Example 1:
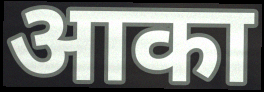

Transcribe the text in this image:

आका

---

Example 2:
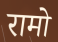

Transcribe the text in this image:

रामो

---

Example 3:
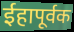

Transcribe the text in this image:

ईहापूर्वक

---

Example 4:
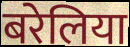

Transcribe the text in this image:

बरेलिया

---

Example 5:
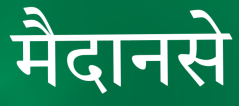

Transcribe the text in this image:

मैदानसे